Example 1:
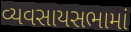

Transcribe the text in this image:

વ્યવસાયસભામાં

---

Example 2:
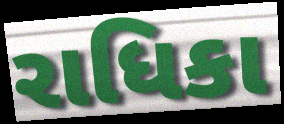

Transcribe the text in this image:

રાધિકા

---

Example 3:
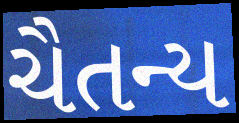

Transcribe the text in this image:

ચૈતન્ય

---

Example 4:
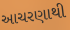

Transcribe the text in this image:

આચરણાથી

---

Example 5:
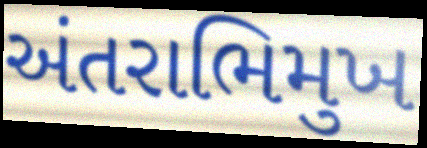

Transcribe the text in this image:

અંતરાભિમુખ